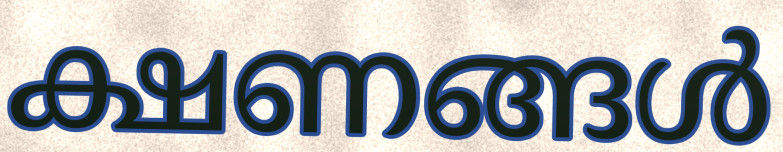
ക്ഷണങ്ങൾ